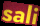
sali